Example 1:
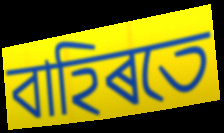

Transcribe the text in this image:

বাহিৰতে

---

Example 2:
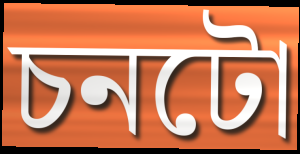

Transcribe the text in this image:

চনটো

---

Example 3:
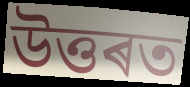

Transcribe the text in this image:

উত্তৰত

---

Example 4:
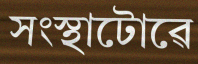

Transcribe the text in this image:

সংস্থাটোৱে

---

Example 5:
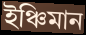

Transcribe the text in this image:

ইঞ্চিমান